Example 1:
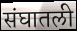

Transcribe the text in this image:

संघातली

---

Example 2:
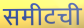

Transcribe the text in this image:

समीटची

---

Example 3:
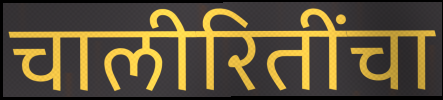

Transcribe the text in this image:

चालीरितींचा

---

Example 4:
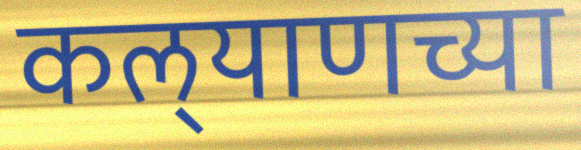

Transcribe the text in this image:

कल्याणच्या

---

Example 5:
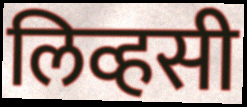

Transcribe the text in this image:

लिव्हसी